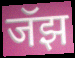
जॅझ